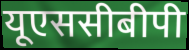
यूएससीबीपी